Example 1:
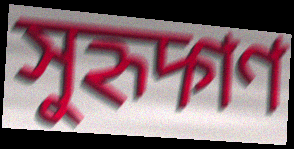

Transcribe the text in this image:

সুহৃদ্গণ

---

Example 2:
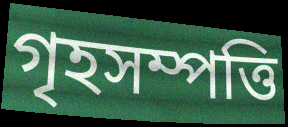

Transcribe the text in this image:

গৃহসম্পত্তি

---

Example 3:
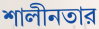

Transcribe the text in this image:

শালীনতার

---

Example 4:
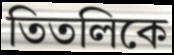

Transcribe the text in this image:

তিতলিকে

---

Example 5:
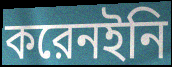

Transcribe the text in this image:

করেনইনি